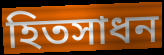
হিতসাধন